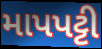
માપપટ્ટી